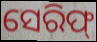
ସେରିଫ୍